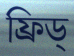
ফ্ৰিড্